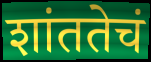
शांततेचं